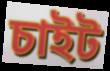
চাইট